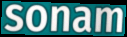
sonam